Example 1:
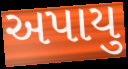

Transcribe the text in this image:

અપાયુ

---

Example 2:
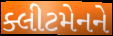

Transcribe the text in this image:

ક્લીટમેનને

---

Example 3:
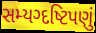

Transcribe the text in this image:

સમ્યગ્દષ્ટિપણું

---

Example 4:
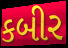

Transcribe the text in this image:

કબીર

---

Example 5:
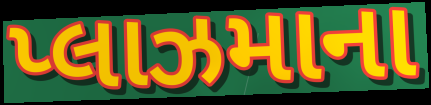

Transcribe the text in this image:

પ્લાઝમાના